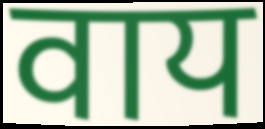
वाय